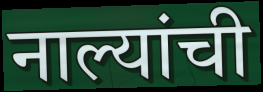
नाल्यांची